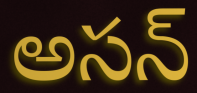
అసన్